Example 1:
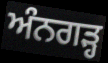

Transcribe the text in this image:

ਅੰਨਗੜ੍ਹ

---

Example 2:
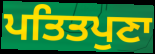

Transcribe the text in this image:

ਪਤਿਤਪੁਣਾ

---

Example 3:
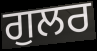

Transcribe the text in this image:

ਗੁਲਰ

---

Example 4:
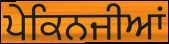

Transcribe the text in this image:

ਪੇਕਿਨਜੀਆਂ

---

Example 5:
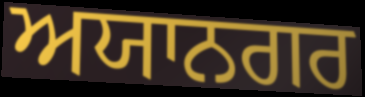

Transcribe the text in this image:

ਅਯਾਨਗਰ